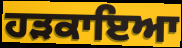
ਹੜਕਾਇਆ